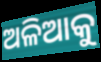
ଅଳିଆକୁ